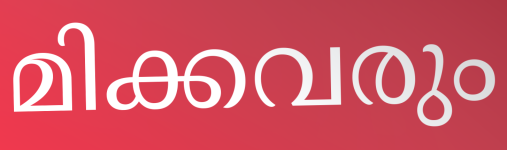
മിക്കവരും